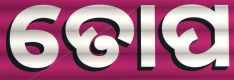
ତୋପ